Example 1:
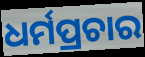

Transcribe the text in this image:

ଧର୍ମପ୍ରଚାର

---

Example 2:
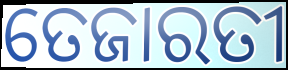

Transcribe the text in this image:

ତେଜାରତୀ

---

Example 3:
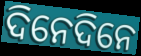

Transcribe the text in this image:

ଦିନେଦିନେ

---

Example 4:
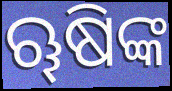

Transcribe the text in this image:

ୠଷିଙ୍କ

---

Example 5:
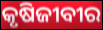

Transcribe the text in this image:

କୃଷିଜୀବୀର